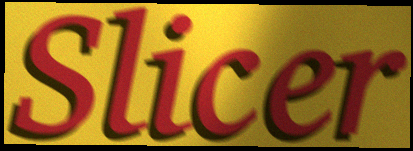
Slicer